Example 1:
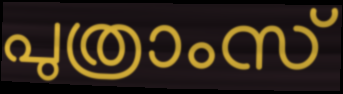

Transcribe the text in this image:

പുത്രാംസ്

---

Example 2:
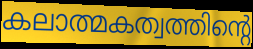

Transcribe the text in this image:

കലാത്മകത്വത്തിന്റെ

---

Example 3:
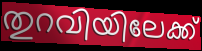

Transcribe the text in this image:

തുറവിയിലേക്ക്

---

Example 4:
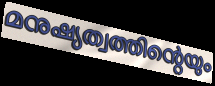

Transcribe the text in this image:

മനുഷ്യത്വത്തിന്റെയും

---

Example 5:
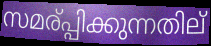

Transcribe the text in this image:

സമര്പ്പിക്കുന്നതില്